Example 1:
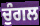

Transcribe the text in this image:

ਚੁੰਗਲ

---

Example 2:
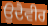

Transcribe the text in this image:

ਉਦੈਵੀਰ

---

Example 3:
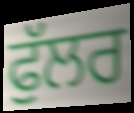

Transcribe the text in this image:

ਫੁੱਲਰ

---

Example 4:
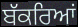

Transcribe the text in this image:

ਬੱਕਰਿਆਂ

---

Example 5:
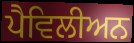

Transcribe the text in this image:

ਪੈਵਿਲੀਅਨ